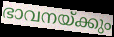
ഭാവനയ്ക്കും